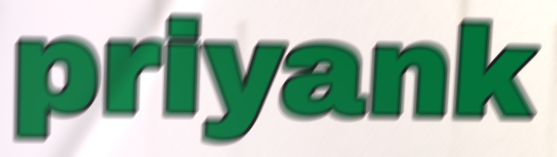
priyank